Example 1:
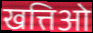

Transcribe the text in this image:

खत्तिओ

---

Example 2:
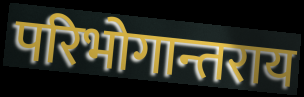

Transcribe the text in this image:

परिभोगान्तराय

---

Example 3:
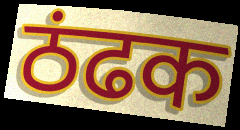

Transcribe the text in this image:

ठंढक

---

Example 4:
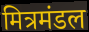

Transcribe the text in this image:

मित्रमंडल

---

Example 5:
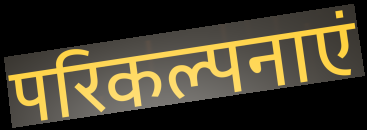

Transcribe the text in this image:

परिकल्पनाएं